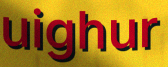
uighur